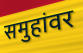
समुहांवर